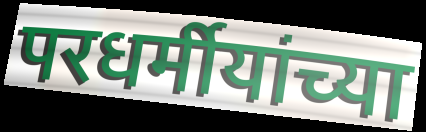
परधर्मीयांच्या